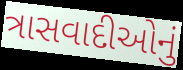
ત્રાસવાદીઓનું